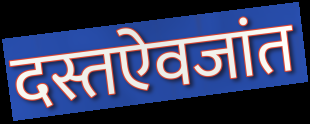
दस्तऐवजांत